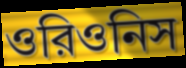
ওরিওনিস